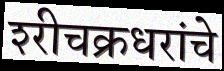
श्रीचक्रधरांचे